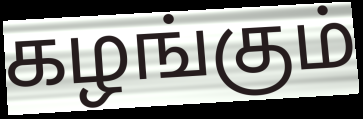
கழங்கும்